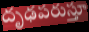
దృఢపరుస్తూ